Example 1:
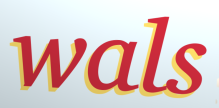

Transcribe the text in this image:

wals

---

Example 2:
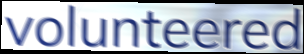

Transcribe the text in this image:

volunteered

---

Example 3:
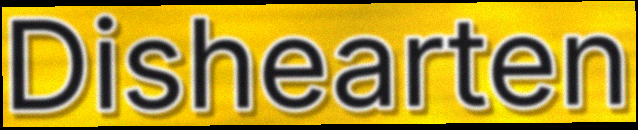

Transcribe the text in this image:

Dishearten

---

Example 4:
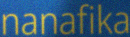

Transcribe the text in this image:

nanafika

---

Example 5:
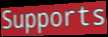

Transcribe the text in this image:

Supports